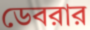
ডেবরার